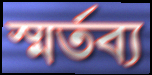
স্মৰ্তব্য